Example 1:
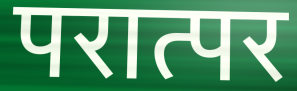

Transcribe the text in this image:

परात्पर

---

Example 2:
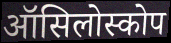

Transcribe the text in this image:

ऑसिलोस्कोप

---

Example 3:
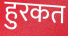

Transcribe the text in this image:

हुरकत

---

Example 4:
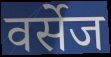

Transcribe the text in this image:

वर्सेज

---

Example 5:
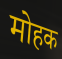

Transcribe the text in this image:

मोहक